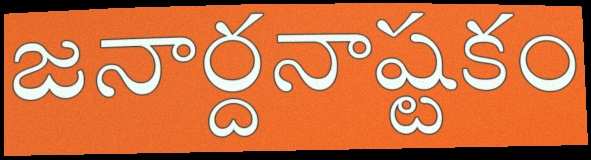
జనార్దనాష్టకం